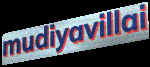
mudiyavillai